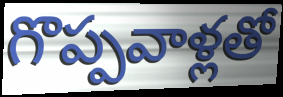
గొప్పవాళ్లతో